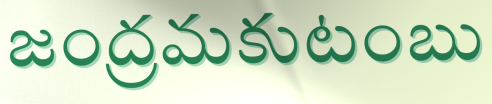
జంద్రమకుటంబు